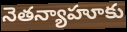
నెతన్యాహూకు